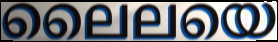
ലൈലയെ